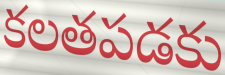
కలతపడకు